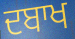
ਦਬਾਖ